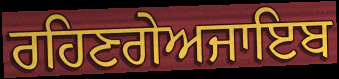
ਰਹਿਣਗੇਅਜਾਇਬ